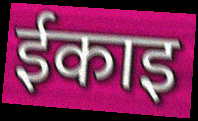
ईकाइ